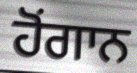
ਹੋਂਗਾਨ